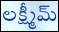
లక్ష్మీమ్